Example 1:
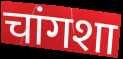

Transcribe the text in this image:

चांगशा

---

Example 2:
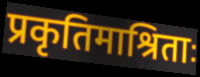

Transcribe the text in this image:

प्रकृतिमाश्रिताः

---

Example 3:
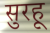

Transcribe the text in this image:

सुरहू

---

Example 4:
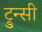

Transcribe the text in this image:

ट्रुन्सी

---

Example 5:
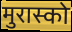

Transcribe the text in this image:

मुरास्को